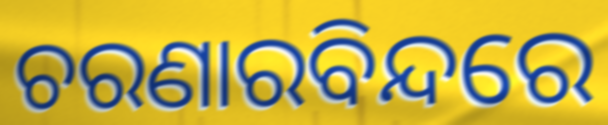
ଚରଣାରବିନ୍ଦରେ